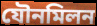
যৌনমিলন